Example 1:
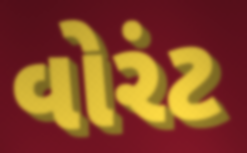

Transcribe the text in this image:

વોરંટ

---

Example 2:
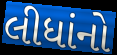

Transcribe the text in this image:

લીધાંનો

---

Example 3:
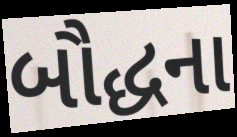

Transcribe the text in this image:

બૌદ્ધના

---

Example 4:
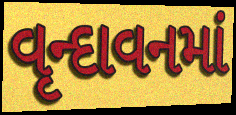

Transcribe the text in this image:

વૃન્દાવનમાં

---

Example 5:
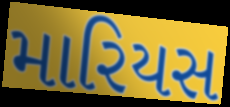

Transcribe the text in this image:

મારિયસ